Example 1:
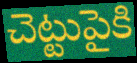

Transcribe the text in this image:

చెట్టుపైకి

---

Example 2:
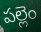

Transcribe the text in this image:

పల్లెం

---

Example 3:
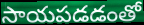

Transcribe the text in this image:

సాయపడడంతో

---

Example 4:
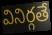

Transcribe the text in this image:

వినిర్గతే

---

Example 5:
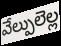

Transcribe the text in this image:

వేల్పులెల్ల